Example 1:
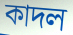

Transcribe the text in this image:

কাদল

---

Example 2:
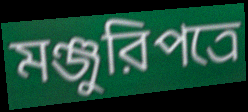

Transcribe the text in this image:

মঞ্জুরিপত্রে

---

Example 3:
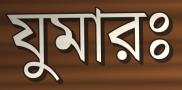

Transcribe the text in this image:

যুমারঃ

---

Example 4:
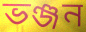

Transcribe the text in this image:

ভঞ্জন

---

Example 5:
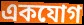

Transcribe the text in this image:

একযোগ